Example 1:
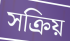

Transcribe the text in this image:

সক্রিয়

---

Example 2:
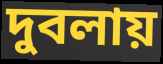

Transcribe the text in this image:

দুবলায়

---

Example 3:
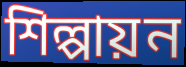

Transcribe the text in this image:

শিল্পায়ন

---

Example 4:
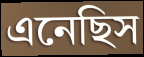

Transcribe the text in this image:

এনেছিস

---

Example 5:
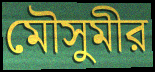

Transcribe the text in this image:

মৌসুমীর